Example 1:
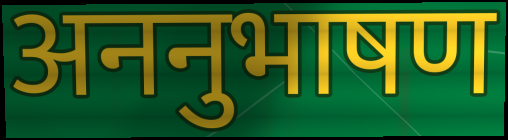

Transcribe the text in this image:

अननुभाषण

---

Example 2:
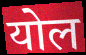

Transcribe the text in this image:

योल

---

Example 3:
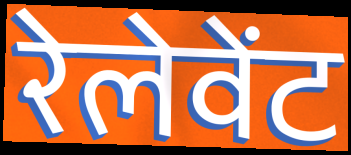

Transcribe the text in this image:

रेलेवेंट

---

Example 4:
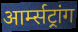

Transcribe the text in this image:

आर्म्सट्रांग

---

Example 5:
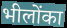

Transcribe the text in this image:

भीलोंका